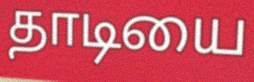
தாடியை